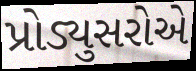
પ્રોડ્યુસરોએ